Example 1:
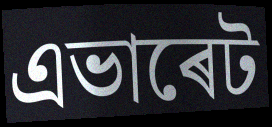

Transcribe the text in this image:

এভাৰেট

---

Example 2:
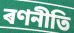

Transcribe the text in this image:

ৰণনীতি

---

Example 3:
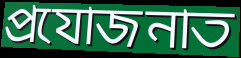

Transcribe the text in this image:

প্ৰযোজনাত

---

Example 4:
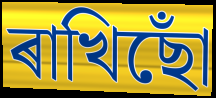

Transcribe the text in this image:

ৰাখিছোঁ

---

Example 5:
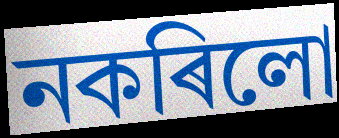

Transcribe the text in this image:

নকৰিলো